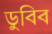
ডুবিব